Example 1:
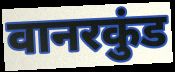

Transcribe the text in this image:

वानरकुंड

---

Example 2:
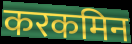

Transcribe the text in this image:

करकमिन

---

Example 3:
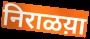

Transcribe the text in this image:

निराळय़ा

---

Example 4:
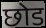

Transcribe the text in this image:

छोड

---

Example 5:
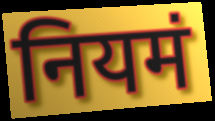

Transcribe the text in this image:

नियमं